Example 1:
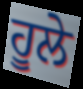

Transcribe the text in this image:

ਹੂਲੇ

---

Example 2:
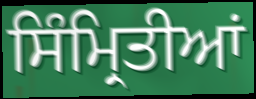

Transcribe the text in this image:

ਸਿੰਮ੍ਰਿਤੀਆਂ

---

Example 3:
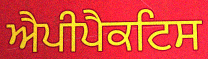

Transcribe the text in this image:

ਐਪੀਪੈਕਟਿਸ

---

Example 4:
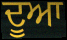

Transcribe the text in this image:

ਦੂਆ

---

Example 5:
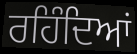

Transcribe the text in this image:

ਰਹਿੰਦਿਆਂ